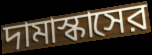
দামাস্কাসের